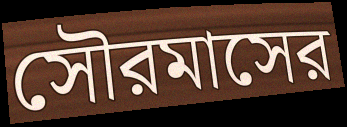
সৌরমাসের